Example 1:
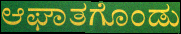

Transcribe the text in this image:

ಆಘಾತಗೊಂಡು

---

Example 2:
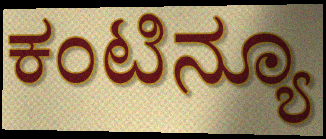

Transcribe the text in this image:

ಕಂಟಿನ್ಯೂ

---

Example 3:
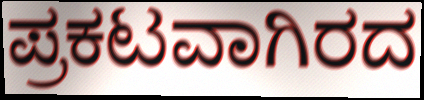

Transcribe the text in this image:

ಪ್ರಕಟವಾಗಿರದ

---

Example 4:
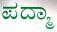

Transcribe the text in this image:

ಪದ್ಮಾ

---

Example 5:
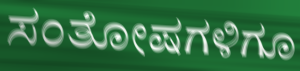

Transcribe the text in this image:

ಸಂತೋಷಗಳಿಗೂ